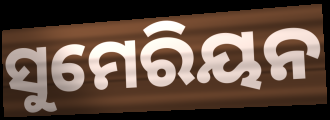
ସୁମେରିୟନ